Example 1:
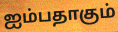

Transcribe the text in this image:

ஐம்பதாகும்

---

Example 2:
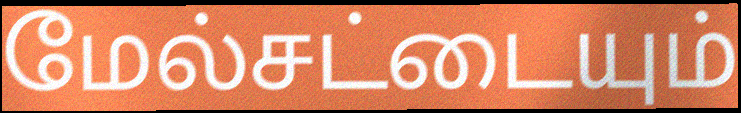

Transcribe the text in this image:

மேல்சட்டையும்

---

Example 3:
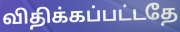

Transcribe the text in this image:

விதிக்கப்பட்டதே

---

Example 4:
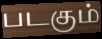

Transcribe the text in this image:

படகும்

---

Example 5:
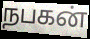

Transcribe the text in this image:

நபகன்